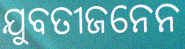
ଯୁବତୀଜନେନ